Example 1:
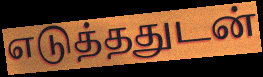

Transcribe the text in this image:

எடுத்ததுடன்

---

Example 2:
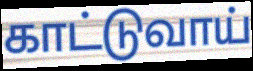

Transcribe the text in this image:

காட்டுவாய்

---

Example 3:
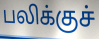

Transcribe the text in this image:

பலிக்குச்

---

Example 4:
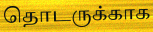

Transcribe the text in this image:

தொடருக்காக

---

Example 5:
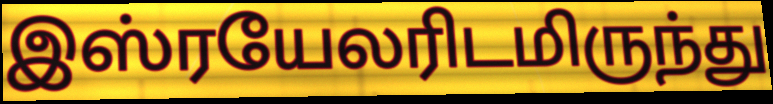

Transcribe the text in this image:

இஸ்ரயேலரிடமிருந்து